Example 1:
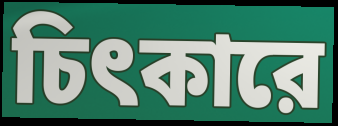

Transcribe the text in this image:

চিৎকারে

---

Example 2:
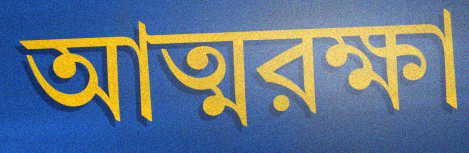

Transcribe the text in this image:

আত্মরক্ষা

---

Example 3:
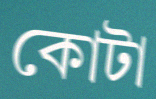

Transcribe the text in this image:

কোটা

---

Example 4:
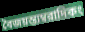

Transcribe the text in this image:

বৈজয়ন্ত্যম্বরাদিকং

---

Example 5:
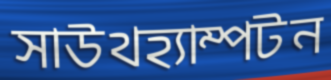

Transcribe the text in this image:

সাউথহ্যাম্পটন